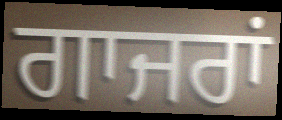
ਗਾਜਰਾਂ